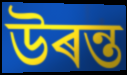
উৰন্ত